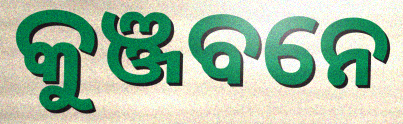
କୁଞ୍ଜବନେ